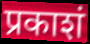
प्रकाशं